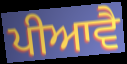
ਪੀਆਵੈ